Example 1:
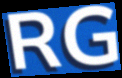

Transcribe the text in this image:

RG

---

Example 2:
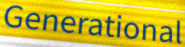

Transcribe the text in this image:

Generational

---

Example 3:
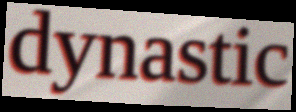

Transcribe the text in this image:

dynastic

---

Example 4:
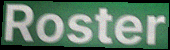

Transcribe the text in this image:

Roster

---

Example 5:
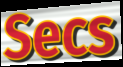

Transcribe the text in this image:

Secs